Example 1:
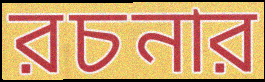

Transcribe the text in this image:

রচনার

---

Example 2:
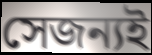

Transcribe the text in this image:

সেজন্যই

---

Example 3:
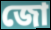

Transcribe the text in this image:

জো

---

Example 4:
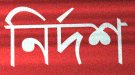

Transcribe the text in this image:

নির্দশ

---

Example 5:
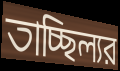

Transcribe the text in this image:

তাচ্ছিল্যর